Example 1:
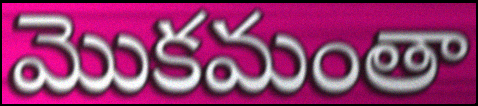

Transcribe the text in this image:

మొకమంతా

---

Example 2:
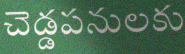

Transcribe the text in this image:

చెడ్డపనులకు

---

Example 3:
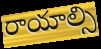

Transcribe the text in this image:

రాయాల్సి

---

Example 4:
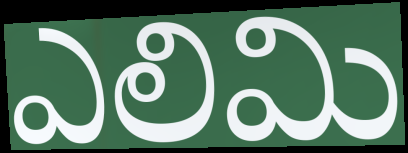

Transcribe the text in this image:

ఎలిమి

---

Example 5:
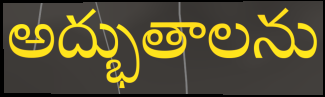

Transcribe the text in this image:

అద్భుతాలను